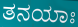
ತನಯಾಃ